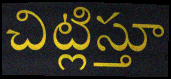
చిట్లిస్తూ